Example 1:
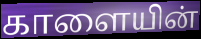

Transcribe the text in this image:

காளையின்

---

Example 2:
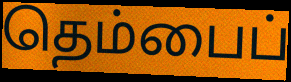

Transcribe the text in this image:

தெம்பைப்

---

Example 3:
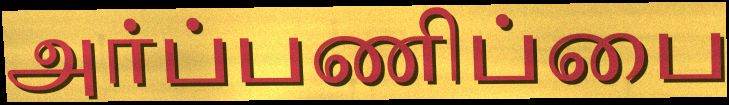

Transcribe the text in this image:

அர்ப்பணிப்பை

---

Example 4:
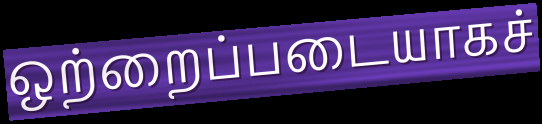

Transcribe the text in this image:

ஒற்றைப்படையாகச்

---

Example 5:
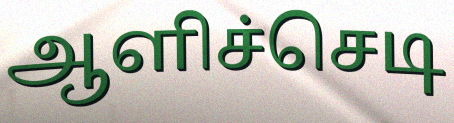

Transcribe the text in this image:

ஆளிச்செடி